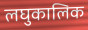
लघुकालिक